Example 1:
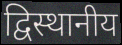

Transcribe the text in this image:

द्विस्थानीय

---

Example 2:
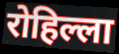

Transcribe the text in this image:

रोहिल्ला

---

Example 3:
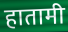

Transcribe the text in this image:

हातामी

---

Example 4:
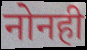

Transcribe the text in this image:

नोनही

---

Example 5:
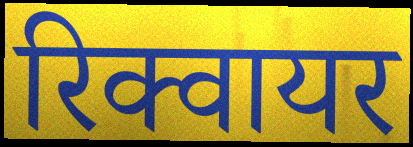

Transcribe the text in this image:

रिक्वायर